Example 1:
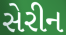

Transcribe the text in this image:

સેરીન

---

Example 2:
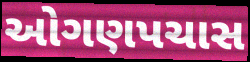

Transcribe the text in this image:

ઓગણપચાસ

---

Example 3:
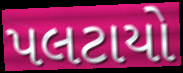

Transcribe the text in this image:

પલટાયો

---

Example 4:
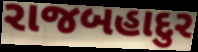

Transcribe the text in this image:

રાજબહાદુર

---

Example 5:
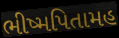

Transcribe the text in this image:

ભીષ્મપિતામહ